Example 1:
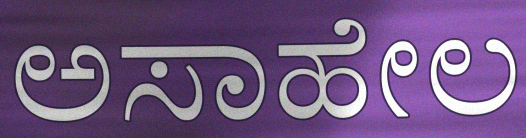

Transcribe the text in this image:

ಅಸಾಹೇಲ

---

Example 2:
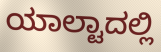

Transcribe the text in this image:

ಯಾಲ್ಟಾದಲ್ಲಿ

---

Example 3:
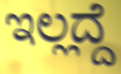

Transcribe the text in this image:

ಇಲ್ಲದ್ದೆ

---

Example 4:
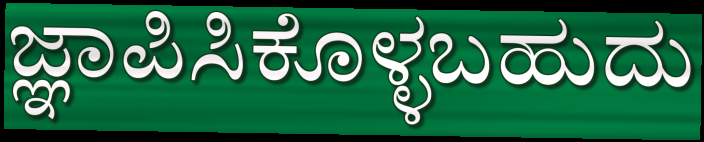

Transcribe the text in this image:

ಜ್ಞಾಪಿಸಿಕೊಳ್ಳಬಹುದು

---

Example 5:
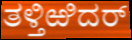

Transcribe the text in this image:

ತಳ್ತಿಱಿದರ್